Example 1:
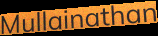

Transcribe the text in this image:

Mullainathan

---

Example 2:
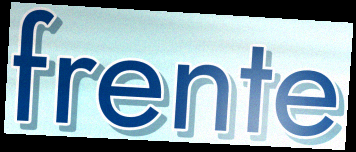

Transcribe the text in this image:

frente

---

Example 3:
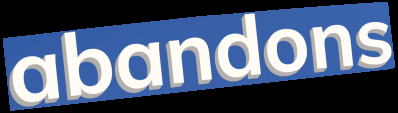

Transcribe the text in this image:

abandons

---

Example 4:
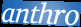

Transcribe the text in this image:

anthro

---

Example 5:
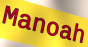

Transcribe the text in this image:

Manoah